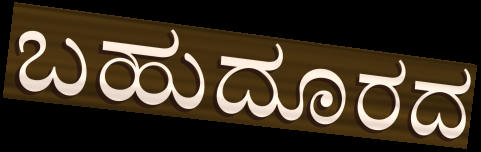
ಬಹುದೂರದ